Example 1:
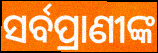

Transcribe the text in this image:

ସର୍ବପ୍ରାଣୀଙ୍କ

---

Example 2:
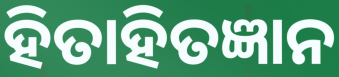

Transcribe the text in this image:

ହିତାହିତଜ୍ଞାନ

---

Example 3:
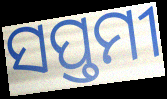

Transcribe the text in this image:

ସପ୍ତମୀ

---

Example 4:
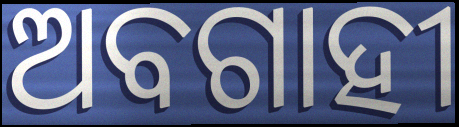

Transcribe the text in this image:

ଅବଗାହୀ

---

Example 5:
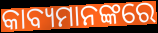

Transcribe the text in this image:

କାବ୍ୟମାନଙ୍କରେ